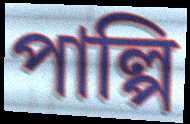
পাল্পি